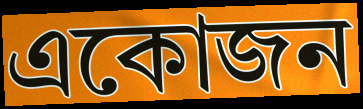
একোজন